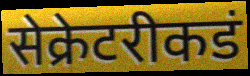
सेक्रेटरीकडं